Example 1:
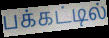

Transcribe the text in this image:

பக்கட்டில்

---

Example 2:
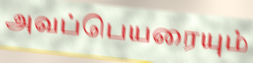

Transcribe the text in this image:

அவப்பெயரையும்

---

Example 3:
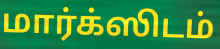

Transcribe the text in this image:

மார்க்ஸிடம்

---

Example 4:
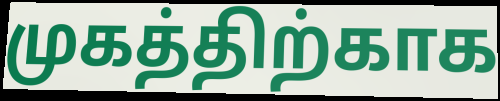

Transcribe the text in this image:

முகத்திற்காக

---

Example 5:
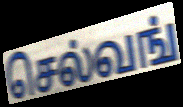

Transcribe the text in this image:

செல்வங்